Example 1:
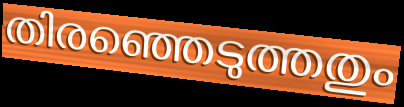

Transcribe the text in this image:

തിരഞ്ഞെടുത്തതും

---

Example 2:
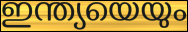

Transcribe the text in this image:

ഇന്ത്യയെയും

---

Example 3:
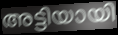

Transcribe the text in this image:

അട്ടിയായി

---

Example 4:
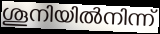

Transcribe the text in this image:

ശൂനിയിൽനിന്ന്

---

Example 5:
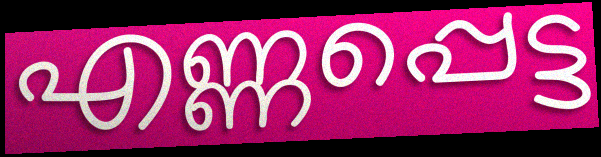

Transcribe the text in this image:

എണ്ണപ്പെട്ട